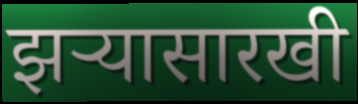
झर्‍यासारखी